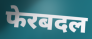
फेरबदल